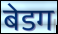
बेडग